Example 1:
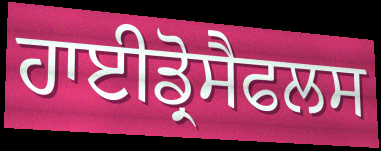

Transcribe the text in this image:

ਹਾਈਡ੍ਰੋਸੈਫਲਸ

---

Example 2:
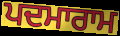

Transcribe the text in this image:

ਪਦਮਾਰਾਮ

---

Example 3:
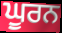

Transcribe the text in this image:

ਘੂਰਨ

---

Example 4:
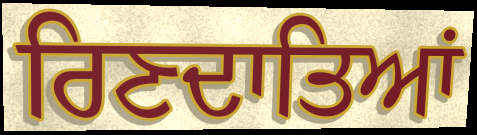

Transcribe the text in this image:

ਰਿਣਦਾਤਿਆਂ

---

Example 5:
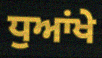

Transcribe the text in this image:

ਧੁਆਂਖੇ